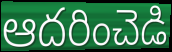
ఆదరించెడి